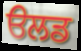
ੳਲਡ